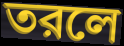
তরলে